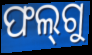
ଫଲ୍‌ଗୁ